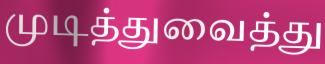
முடித்துவைத்து